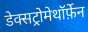
डेक्सट्रोमेथॉर्फ़ेन